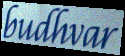
budhvar